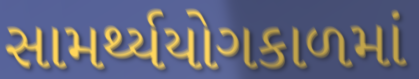
સામર્થ્યયોગકાળમાં